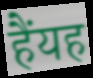
हैंयह